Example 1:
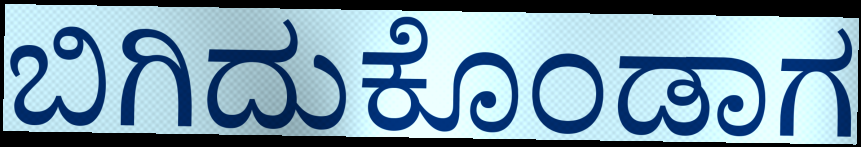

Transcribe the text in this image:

ಬಿಗಿದುಕೊಂಡಾಗ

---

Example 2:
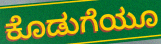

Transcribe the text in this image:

ಕೊಡುಗೆಯೂ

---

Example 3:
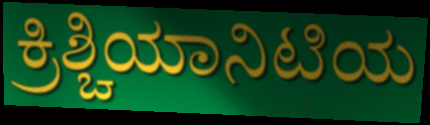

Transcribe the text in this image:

ಕ್ರಿಶ್ಚಿಯಾನಿಟಿಯ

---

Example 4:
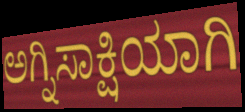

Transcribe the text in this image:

ಅಗ್ನಿಸಾಕ್ಷಿಯಾಗಿ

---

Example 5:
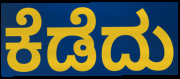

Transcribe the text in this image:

ಕೆಡೆದು